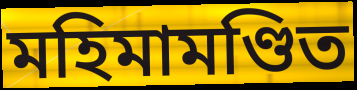
মহিমামণ্ডিত